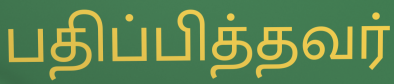
பதிப்பித்தவர்